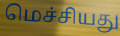
மெச்சியது